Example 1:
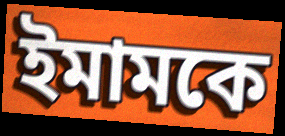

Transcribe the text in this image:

ইমামকে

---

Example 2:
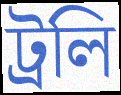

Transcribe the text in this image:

ট্রলি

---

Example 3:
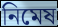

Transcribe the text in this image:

নিমেষ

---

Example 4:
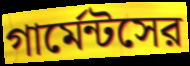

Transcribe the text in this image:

গার্মেন্টসের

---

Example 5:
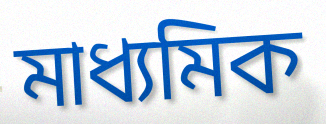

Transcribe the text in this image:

মাধ্যমিক